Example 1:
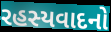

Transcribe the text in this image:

રહસ્યવાદનો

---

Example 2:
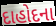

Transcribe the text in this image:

દાહોદના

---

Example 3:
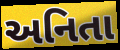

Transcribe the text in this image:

અનિતા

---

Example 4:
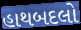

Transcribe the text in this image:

હાથબદલો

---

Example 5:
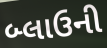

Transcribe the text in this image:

બ્લાઉની